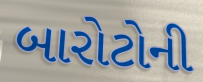
બારોટોની